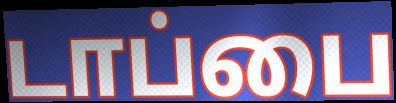
டாப்பை